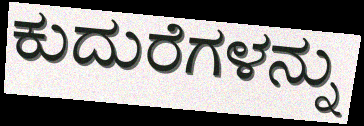
ಕುದುರೆಗಳನ್ನು